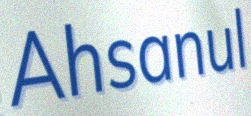
Ahsanul